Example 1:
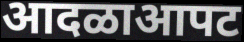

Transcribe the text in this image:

आदळाआपट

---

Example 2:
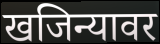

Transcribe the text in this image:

खजिन्यावर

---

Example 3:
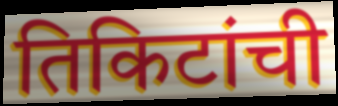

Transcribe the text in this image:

तिकिटांची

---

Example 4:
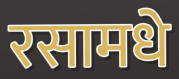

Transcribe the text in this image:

रसामधे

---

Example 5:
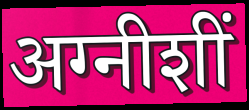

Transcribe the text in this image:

अग्नीशीं